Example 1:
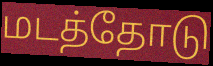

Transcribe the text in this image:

மடத்தோடு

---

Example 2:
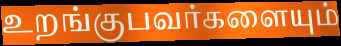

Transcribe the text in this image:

உறங்குபவர்களையும்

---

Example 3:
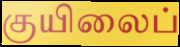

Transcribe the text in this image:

குயிலைப்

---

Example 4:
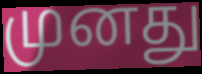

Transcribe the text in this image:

முனது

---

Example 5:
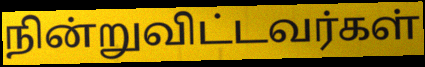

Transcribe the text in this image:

நின்றுவிட்டவர்கள்